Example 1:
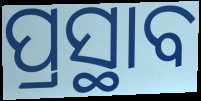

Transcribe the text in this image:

ପ୍ରସ୍ଥାବ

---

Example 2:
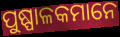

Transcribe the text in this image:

ପୁଷ୍ପାଳକମାନେ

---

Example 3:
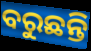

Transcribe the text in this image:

ବରୁଛନ୍ତି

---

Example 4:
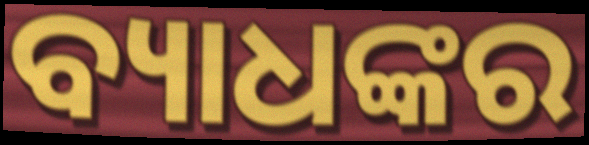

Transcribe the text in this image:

ବ୍ୟାଧଙ୍କର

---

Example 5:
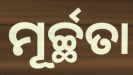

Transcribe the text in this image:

ମୂର୍ଚ୍ଛତା